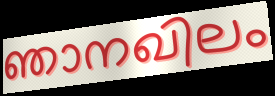
ഞാനഖിലം